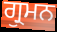
ਗ੍ਰੁਮਨ